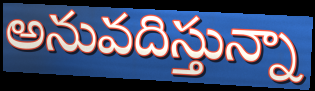
అనువదిస్తున్నా